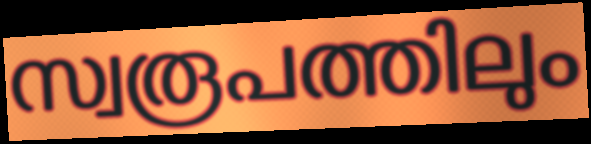
സ്വരൂപത്തിലും